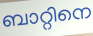
ബാറ്റിനെ